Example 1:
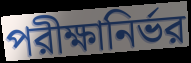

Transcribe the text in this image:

পরীক্ষানির্ভর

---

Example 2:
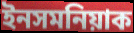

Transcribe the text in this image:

ইনসমনিয়াক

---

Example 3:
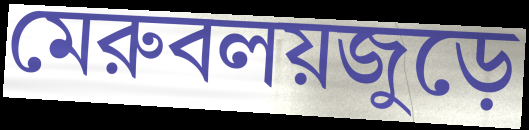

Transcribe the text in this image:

মেরুবলয়জুড়ে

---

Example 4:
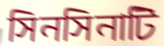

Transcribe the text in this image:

সিনসিনাটি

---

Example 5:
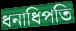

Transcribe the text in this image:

ধনাধিপতি